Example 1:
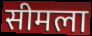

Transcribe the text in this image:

सीमला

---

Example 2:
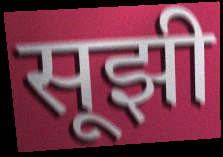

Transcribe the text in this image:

सूझी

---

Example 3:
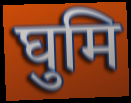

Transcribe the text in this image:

घुमि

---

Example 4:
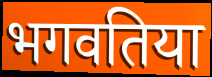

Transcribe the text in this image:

भगवतिया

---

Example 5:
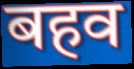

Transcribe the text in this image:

बहव